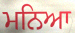
ਮਨਿਆ